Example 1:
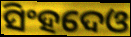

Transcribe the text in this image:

ସିଂହଦେଓ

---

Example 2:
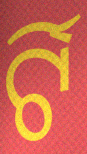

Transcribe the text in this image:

ର୍ଟି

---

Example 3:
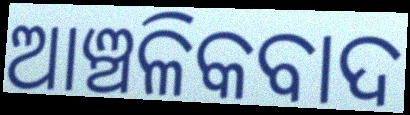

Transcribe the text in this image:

ଆଞ୍ଚଳିକବାଦ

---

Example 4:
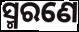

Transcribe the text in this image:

ସ୍ମରଣେ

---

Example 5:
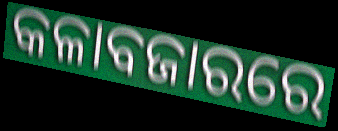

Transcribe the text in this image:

କଳାବଜାରରେ